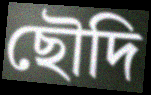
ছৌদি